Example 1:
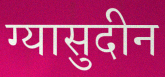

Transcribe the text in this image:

ग्यासुदीन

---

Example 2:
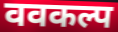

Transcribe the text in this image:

ववकल्प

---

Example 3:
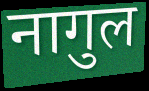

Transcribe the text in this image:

नागुल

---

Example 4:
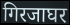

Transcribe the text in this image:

गिरजाघर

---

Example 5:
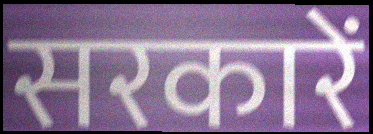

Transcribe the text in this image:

सरकारें